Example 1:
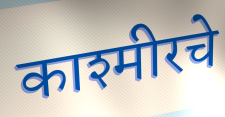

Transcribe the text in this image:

काश्मीरचे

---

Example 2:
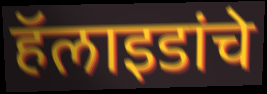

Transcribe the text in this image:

हॅलाइडांचे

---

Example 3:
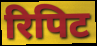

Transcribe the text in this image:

रिपिट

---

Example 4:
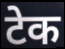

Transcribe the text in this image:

टेक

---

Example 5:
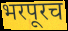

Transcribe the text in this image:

भरपूरच